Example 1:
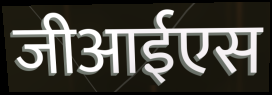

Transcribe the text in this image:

जीआईएस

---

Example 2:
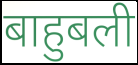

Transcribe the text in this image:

बाहुबली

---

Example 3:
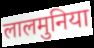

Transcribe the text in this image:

लालमुनिया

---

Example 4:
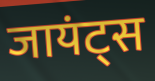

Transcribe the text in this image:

जायंट्स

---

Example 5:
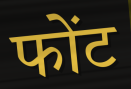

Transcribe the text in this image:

फोंट